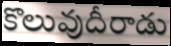
కొలువుదీరాడు